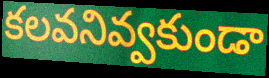
కలవనివ్వకుండా